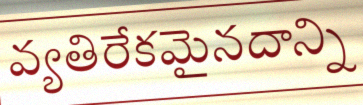
వ్యతిరేకమైనదాన్ని